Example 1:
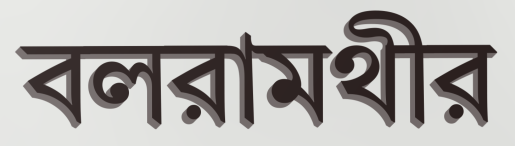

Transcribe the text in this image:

বলরামথীর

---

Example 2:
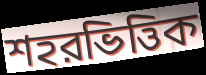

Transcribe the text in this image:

শহরভিত্তিক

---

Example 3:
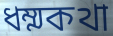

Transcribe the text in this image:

ধম্মকথা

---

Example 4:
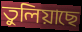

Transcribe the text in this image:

তুলিয়াছে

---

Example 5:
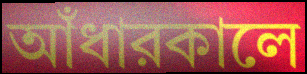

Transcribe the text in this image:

আঁধারকালে